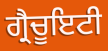
ਗ੍ਰੈਚੂਇਟੀ